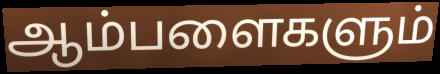
ஆம்பளைகளும்